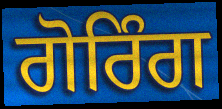
ਗੋਰਿੰਗ